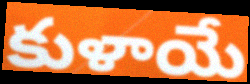
కుళాయే